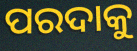
ପରଦାକୁ